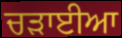
ਚੜਾਈਆ